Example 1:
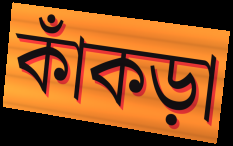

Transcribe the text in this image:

কাঁকড়া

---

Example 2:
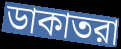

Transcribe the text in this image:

ডাকাতরা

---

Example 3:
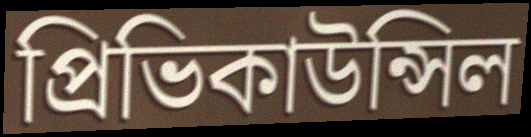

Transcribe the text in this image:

প্রিভিকাউন্সিল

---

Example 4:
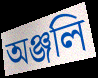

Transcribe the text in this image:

অঞ্জলি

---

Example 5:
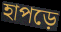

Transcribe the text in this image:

হাপড়ে